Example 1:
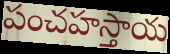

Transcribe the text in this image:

పంచహస్తాయ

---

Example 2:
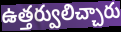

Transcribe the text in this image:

ఉత్తర్వులిచ్చారు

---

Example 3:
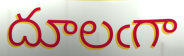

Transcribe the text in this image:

దూలఁగా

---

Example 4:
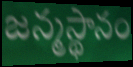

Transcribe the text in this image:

జన్మస్థానం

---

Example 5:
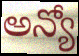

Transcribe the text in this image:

అన్యో